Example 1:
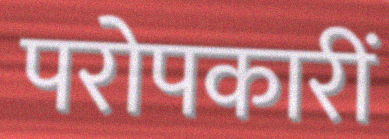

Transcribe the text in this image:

परोपकारीं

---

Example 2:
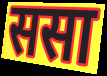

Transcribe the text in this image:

ससा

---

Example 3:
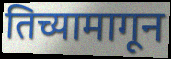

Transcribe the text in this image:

तिच्यामागून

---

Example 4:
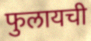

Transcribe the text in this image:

फुलायची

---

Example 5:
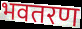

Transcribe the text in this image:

भवतरण